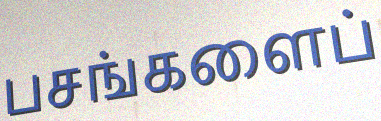
பசங்களைப்